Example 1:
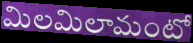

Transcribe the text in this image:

మిలమిలామంటో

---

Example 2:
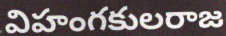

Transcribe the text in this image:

విహంగకులరాజ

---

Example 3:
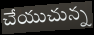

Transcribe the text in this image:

చేయుచున్న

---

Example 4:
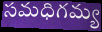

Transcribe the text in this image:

సమధిగమ్య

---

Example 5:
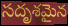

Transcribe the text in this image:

సదృశమైన